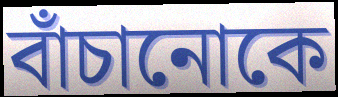
বাঁচানোকে